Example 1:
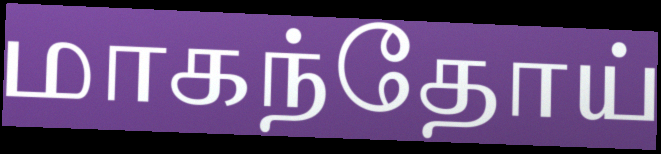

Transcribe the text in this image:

மாகந்தோய்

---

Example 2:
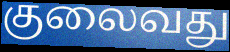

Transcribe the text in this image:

குலைவது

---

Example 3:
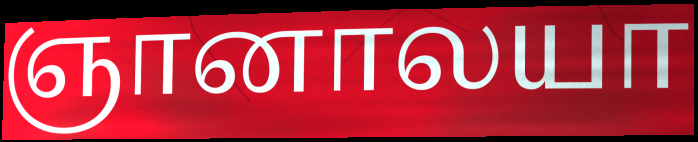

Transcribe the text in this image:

ஞானாலயா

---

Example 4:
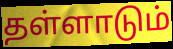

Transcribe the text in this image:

தள்ளாடும்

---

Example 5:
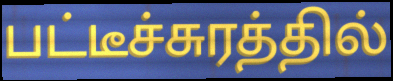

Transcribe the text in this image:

பட்டீச்சுரத்தில்